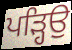
ਪੜ੍ਹਿਉ